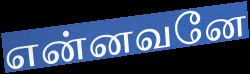
என்னவனே